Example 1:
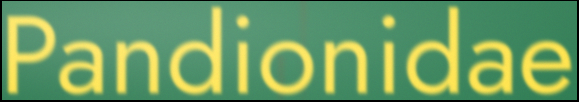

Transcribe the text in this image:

Pandionidae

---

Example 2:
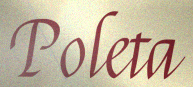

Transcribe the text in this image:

Poleta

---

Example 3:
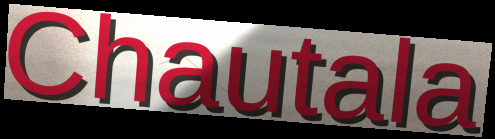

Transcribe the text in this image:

Chautala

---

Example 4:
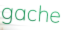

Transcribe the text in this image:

gache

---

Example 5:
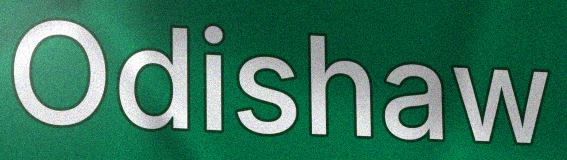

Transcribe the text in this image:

Odishaw